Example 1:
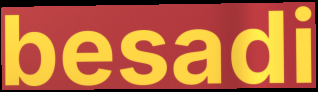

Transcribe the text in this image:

besadi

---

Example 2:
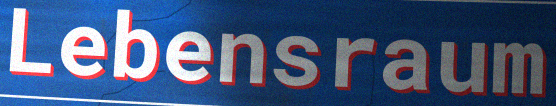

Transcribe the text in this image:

Lebensraum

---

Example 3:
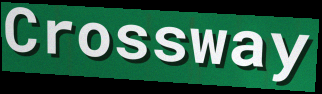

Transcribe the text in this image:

Crossway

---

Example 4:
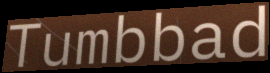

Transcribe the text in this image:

Tumbbad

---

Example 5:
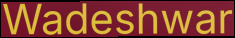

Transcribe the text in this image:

Wadeshwar